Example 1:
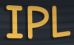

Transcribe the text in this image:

IPL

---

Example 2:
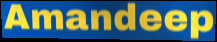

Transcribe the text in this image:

Amandeep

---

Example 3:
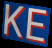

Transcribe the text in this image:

KE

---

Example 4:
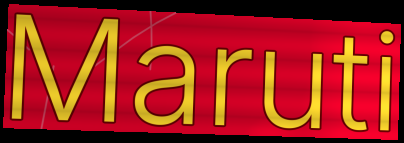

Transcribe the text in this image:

Maruti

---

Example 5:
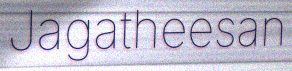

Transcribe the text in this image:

Jagatheesan